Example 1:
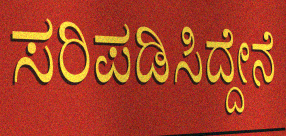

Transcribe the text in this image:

ಸರಿಪಡಿಸಿದ್ದೇನೆ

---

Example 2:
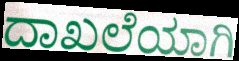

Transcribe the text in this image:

ದಾಖಲೆಯಾಗಿ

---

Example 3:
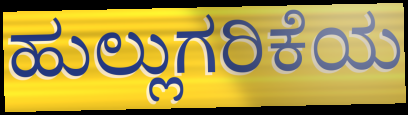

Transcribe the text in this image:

ಹುಲ್ಲುಗರಿಕೆಯ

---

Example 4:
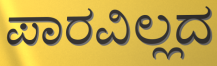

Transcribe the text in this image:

ಪಾರವಿಲ್ಲದ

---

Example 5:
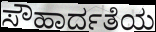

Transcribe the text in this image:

ಸೌಹಾರ್ದತೆಯ